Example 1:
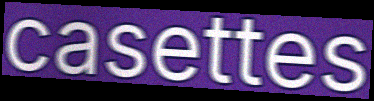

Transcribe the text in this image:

casettes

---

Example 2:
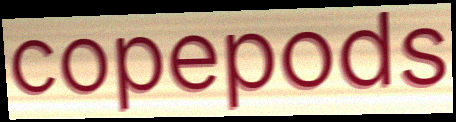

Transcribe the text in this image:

copepods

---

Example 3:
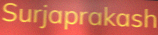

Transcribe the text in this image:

Surjaprakash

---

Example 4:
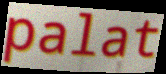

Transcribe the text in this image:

palat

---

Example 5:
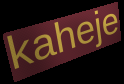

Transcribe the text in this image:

kaheje